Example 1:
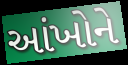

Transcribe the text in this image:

આંખોને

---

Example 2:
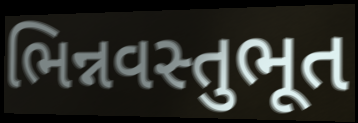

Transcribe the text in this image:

ભિન્નવસ્તુભૂત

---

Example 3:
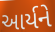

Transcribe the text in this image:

આર્યને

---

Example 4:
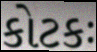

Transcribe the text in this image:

કોટકઃ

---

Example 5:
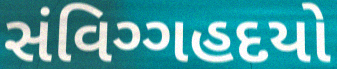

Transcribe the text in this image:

સંવિગ્ગહદયો